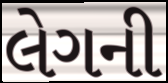
લેગની